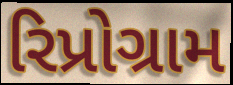
રિપ્રોગ્રામ